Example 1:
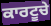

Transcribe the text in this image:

ਕਾਰਟੂਚੇ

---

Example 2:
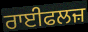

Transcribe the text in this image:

ਰਾਈਫਲਜ਼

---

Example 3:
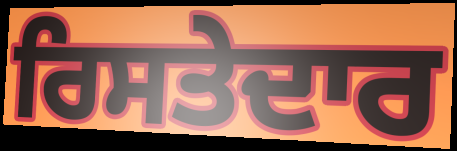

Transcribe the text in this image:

ਰਿਸਤੇਦਾਰ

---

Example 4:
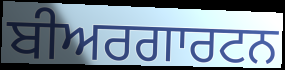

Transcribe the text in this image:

ਬੀਅਰਗਾਰਟਨ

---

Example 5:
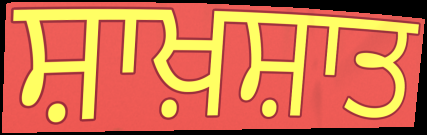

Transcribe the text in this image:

ਸ਼ਾਖ਼ਸ਼ਾਤ